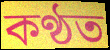
কণ্ঠত